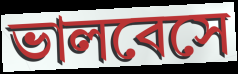
ভালবেসে